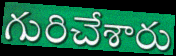
గురిచేశారు